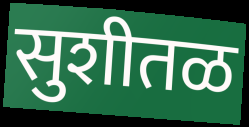
सुशीतळ